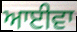
ਆਈਵਾ